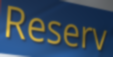
Reserv